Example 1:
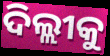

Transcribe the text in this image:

ଦିଲ୍ଲୀକୁ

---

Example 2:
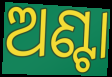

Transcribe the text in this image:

ଅଣ୍ଟା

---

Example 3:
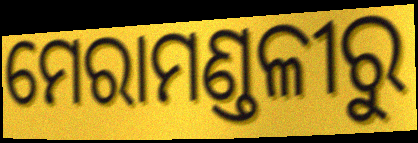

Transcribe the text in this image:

ମେରାମଣ୍ଡଳୀରୁ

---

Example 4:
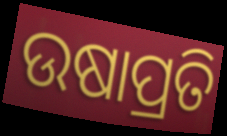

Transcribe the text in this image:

ଉଷାପ୍ରତି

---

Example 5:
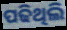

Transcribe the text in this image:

ପଢିଥିଲି